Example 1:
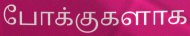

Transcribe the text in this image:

போக்குகளாக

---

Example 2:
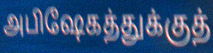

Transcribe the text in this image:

அபிஷேகத்துக்குத்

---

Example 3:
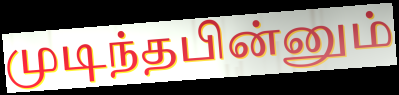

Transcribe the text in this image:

முடிந்தபின்னும்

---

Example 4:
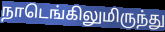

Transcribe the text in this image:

நாடெங்கிலுமிருந்து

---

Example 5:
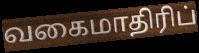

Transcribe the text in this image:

வகைமாதிரிப்